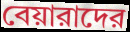
বেয়ারাদের